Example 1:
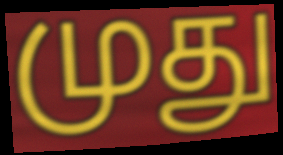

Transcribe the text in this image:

முது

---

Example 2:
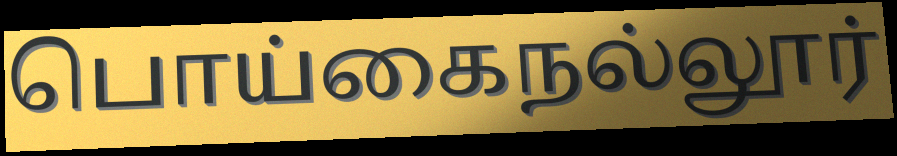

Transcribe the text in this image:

பொய்கைநல்லூர்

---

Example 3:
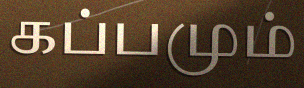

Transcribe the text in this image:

கப்பமும்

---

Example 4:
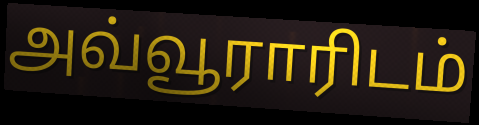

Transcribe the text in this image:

அவ்வூராரிடம்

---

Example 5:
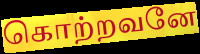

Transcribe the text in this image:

கொற்றவனே